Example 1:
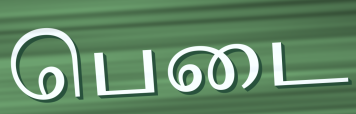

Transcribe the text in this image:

பெடை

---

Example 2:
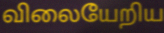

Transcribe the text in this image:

விலையேறிய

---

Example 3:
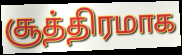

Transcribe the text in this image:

சூத்திரமாக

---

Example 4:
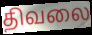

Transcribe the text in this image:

திவலை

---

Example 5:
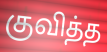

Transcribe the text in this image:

குவித்த